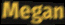
Megan